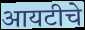
आयटीचे